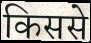
किससे